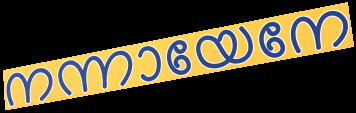
നന്നായേനേ